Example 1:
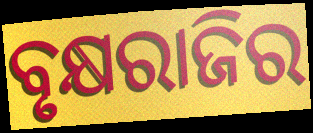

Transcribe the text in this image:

ବୃକ୍ଷରାଜିର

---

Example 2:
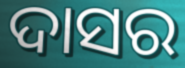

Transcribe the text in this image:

ଦାସର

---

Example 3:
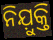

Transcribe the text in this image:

ନିଯ଼ୁକ୍ତି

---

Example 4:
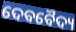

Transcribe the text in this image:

ଦେବବୈଦ୍ୟ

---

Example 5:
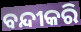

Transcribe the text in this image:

ବନ୍ଦୀକରି